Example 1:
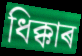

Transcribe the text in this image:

ধিক্কাৰ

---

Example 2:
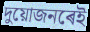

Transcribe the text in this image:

দুয়োজনৰেই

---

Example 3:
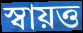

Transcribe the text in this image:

স্বায়ত্ত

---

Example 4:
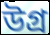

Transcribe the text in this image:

উগ্ৰ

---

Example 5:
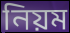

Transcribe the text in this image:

নিয়ম